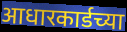
आधारकार्डच्या